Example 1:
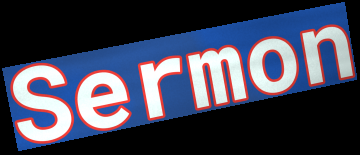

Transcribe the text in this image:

Sermon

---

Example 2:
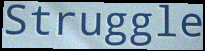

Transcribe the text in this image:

Struggle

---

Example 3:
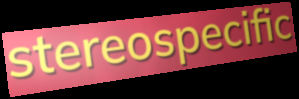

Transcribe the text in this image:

stereospecific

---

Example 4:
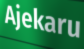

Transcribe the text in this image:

Ajekaru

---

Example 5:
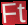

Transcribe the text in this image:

Ft